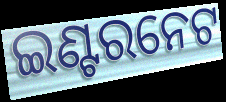
ଇଣ୍ଟରନେଟ